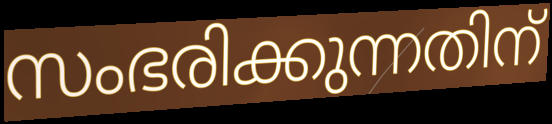
സംഭരിക്കുന്നതിന്